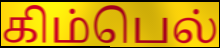
கிம்பெல்